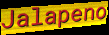
Jalapeno